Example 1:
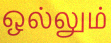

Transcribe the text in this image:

ஒல்லும்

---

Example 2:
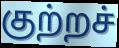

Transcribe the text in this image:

குற்றச்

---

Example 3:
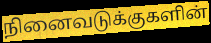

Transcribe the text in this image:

நினைவடுக்குகளின்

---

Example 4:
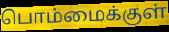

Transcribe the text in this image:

பொம்மைக்குள்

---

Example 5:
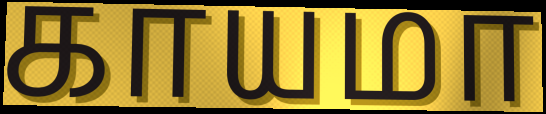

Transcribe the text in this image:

காயமா